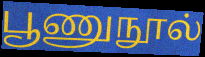
பூணுநூல்